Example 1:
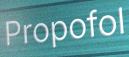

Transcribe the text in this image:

Propofol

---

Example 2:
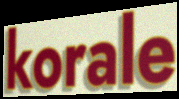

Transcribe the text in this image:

korale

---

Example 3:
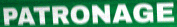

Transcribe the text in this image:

PATRONAGE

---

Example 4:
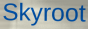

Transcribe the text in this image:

Skyroot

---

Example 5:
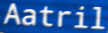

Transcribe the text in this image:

Aatril